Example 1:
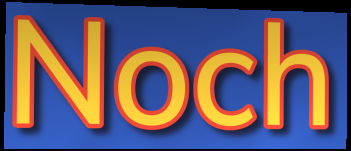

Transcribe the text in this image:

Noch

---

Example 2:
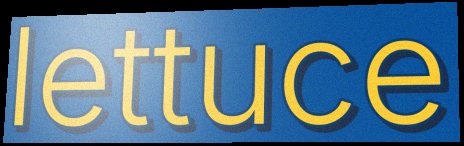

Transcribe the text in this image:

lettuce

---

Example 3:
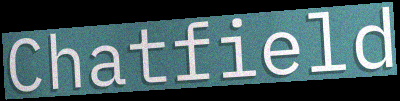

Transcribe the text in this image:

Chatfield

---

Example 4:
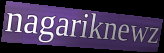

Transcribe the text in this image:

nagariknewz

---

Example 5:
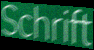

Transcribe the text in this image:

Schrift